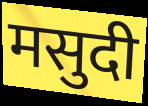
मसुदी